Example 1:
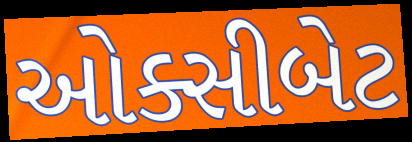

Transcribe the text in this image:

ઓક્સીબેટ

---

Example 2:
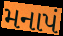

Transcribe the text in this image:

મનાપં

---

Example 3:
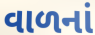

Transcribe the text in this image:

વાળનાં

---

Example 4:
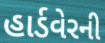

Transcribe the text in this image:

હાર્ડવેરની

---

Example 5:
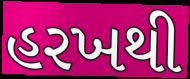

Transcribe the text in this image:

હરખથી